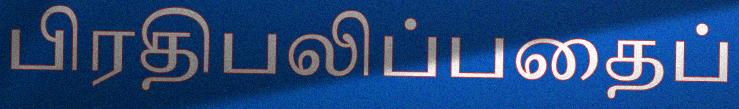
பிரதிபலிப்பதைப்